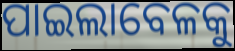
ପାଇଲାବେଳକୁ